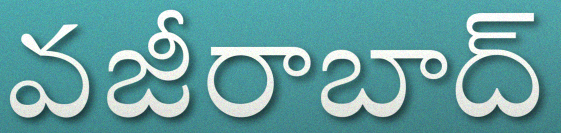
వజీరాబాద్